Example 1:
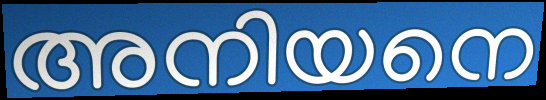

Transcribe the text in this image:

അനിയനെ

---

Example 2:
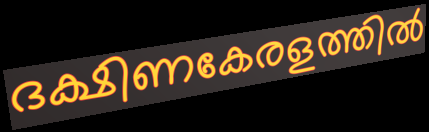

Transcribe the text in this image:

ദക്ഷിണകേരളത്തിൽ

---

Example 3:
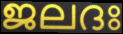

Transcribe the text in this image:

ജലദഃ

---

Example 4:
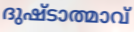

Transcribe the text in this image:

ദുഷ്ടാത്മാവ്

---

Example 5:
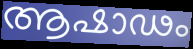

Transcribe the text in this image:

ആഷാഢം